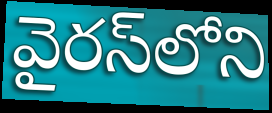
వైరస్‌లోని